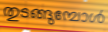
തുടങ്ങുമ്പോൾ